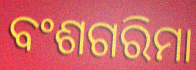
ବଂଶଗରିମା